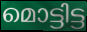
മൊട്ടിട്ട